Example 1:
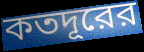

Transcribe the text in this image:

কতদূরের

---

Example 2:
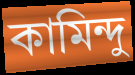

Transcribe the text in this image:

কামিন্দু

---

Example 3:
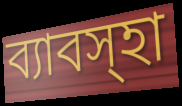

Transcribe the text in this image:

ব্যাবস্হা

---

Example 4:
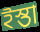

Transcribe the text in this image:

ইস্তা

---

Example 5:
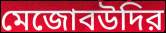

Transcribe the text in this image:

মেজোবউদির